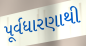
પૂર્વધારણાથી